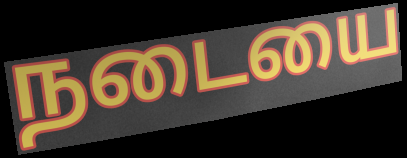
நடையை